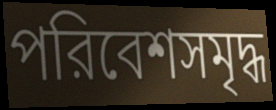
পরিবেশসমৃদ্ধ